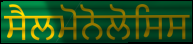
ਸੈਲਮੋਨੋਲੋਸਿਸ